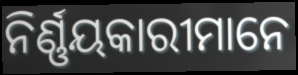
ନିର୍ଣ୍ଣୟକାରୀମାନେ